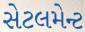
સેટલમેન્ટ